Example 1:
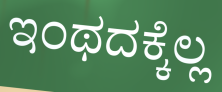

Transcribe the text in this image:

ಇಂಥದಕ್ಕೆಲ್ಲ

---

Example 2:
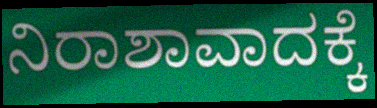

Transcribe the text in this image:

ನಿರಾಶಾವಾದಕ್ಕೆ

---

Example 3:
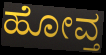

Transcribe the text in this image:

ಹೋವ್ತ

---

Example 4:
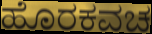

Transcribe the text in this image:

ಹೊರಕವಚ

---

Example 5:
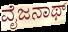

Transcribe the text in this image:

ವೈಜನಾಥ್